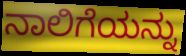
ನಾಲಿಗೆಯನ್ನು